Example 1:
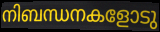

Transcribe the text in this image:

നിബന്ധനകളോടു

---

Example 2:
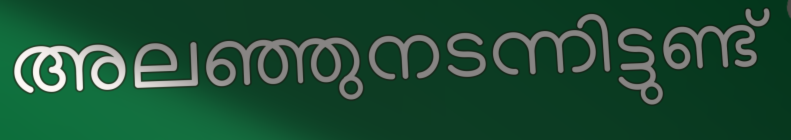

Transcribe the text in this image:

അലഞ്ഞുനടന്നിട്ടുണ്ട്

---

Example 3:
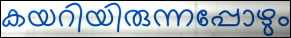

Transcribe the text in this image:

കയറിയിരുന്നപ്പോഴും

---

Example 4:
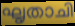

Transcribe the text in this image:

ഘൃതാചി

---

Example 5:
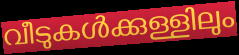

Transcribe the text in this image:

വീടുകൾക്കുള്ളിലും